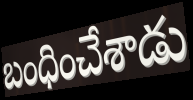
బంధించేశాడు